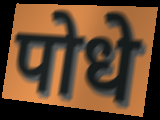
पोधे